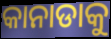
କାନାଡାକୁ